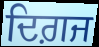
ਦਿਗ਼ਜ